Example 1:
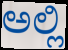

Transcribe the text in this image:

ಅಲ್ಲಿ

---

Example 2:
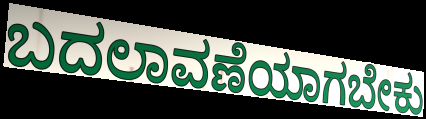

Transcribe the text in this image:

ಬದಲಾವಣೆಯಾಗಬೇಕು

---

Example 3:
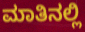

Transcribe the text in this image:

ಮಾತಿನಲ್ಲಿ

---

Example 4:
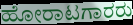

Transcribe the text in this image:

ಹೋರಾಟಗಾರರು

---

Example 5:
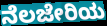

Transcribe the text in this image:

ನೆಲಜೇರಿಯ